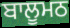
ਬਾਲੂਮਠ